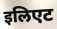
इलिएट